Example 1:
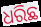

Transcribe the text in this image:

ଧରିଛ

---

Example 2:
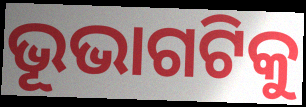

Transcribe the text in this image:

ଭୂଭାଗଟିକୁ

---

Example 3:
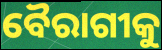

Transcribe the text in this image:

ବୈରାଗୀକୁ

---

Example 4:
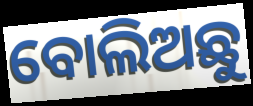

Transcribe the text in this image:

ବୋଲିଅଛୁ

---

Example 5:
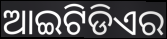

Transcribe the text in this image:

ଆଇଟିଡିଏର